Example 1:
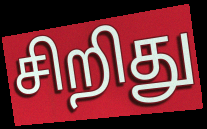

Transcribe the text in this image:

சிறிது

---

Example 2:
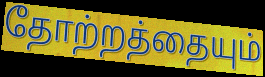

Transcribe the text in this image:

தோற்றத்தையும்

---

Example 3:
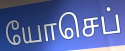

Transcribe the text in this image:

யோசெப்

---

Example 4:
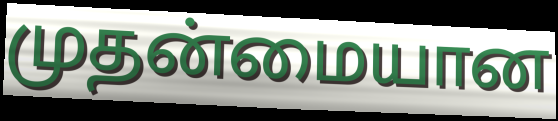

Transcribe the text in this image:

முதன்மையான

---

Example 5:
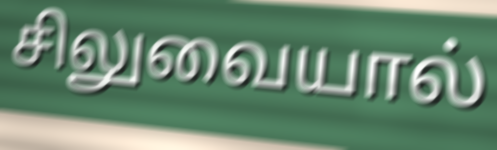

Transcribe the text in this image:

சிலுவையால்